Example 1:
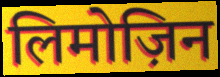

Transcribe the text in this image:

लिमोज़िन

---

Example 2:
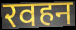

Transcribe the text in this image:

रवहन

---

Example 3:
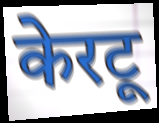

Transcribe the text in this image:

केरटू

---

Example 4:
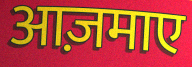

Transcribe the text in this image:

आज़माए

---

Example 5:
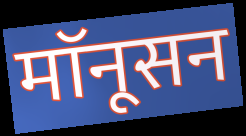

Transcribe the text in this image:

मॉनूसन